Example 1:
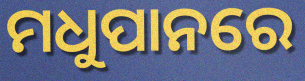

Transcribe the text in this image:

ମଧୁପାନରେ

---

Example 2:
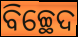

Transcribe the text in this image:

ବିଚ୍ଛେଦ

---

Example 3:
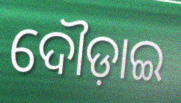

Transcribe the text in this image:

ଦୌଡ଼ାଇ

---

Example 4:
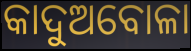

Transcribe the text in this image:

କାଦୁଅବୋଳା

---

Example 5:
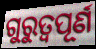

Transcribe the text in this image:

ଗୁରୁତ୍ୱପୂର୍ଣ